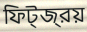
ফিট্‌জ্‌রয়